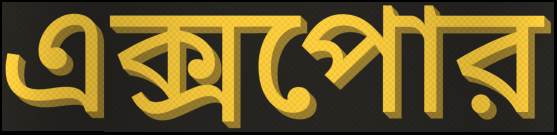
এক্সপোর